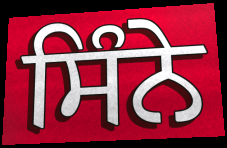
ਸਿੰਨੇ